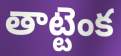
తాట్టెంక